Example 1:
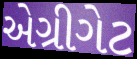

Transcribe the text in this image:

એગ્રીગેટ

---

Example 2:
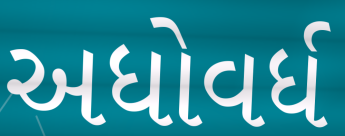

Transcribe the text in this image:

અધોવર્ધ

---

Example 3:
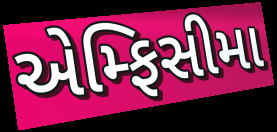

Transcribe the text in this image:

એમ્ફિસીમા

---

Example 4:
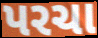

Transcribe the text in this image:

પરચા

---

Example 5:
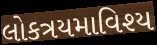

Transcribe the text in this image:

લોકત્રયમાવિશ્ય